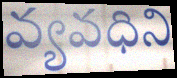
వ్యవధిని